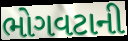
ભોગવટાની